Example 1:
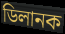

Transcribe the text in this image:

ডিলানক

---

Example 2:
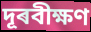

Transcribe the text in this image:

দূৰবীক্ষণ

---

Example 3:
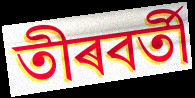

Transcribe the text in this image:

তীৰবৰ্তী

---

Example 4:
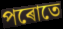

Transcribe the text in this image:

পৰোতে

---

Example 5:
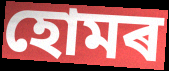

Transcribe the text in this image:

হোমৰ